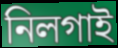
নিলগাই